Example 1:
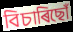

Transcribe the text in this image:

বিচাৰিছোঁ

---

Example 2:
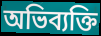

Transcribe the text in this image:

অভিব্যক্তি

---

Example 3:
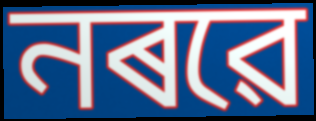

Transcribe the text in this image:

নৰৱে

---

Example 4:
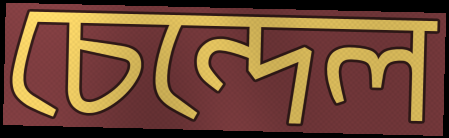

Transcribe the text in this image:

চেন্দেল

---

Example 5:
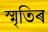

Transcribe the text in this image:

স্মৃতিৰ